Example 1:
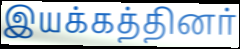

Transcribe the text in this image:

இயக்கத்தினர்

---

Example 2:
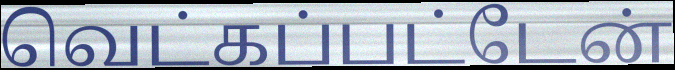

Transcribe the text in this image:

வெட்கப்பட்டேன்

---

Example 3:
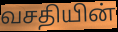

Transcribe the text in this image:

வசதியின்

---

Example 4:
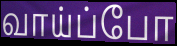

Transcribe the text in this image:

வாய்ப்போ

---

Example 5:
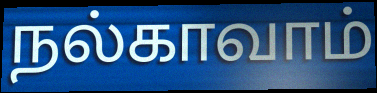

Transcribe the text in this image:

நல்காவாம்